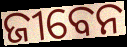
ଜୀବେନ